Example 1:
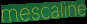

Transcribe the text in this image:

mescaline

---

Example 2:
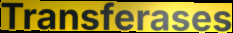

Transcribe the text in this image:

Transferases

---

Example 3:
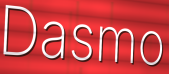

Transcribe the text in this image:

Dasmo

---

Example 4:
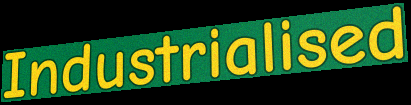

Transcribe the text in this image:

Industrialised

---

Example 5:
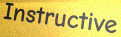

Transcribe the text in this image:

Instructive